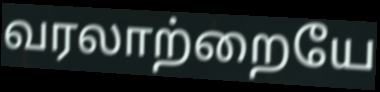
வரலாற்றையே